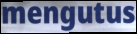
mengutus